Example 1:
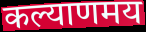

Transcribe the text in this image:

कल्याणमय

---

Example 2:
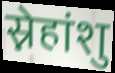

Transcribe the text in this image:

स्नेहांशु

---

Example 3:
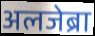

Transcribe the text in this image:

अलजेब्रा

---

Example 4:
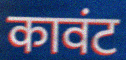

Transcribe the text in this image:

कावंट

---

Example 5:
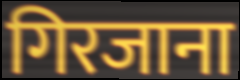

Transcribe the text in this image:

गिरजाना